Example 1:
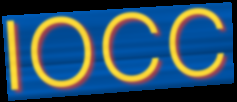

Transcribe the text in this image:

IOCC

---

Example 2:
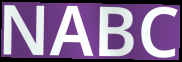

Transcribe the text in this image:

NABC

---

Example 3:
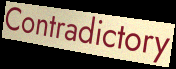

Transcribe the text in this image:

Contradictory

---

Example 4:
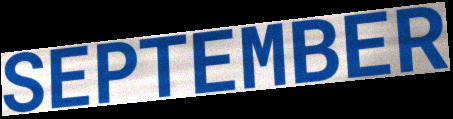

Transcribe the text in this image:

SEPTEMBER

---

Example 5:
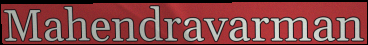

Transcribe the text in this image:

Mahendravarman